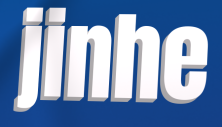
jinhe